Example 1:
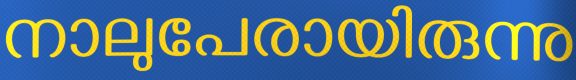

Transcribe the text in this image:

നാലുപേരായിരുന്നു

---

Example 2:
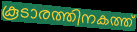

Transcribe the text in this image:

കൂടാരത്തിനകത്ത്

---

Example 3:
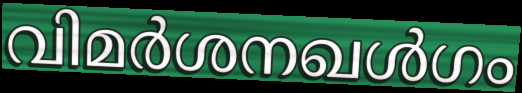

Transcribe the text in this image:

വിമർശനഖൾഗം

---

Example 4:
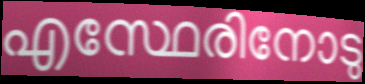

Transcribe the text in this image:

എസ്ഥേരിനോടു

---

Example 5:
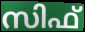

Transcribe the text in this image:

സിഫ്